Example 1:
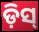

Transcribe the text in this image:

ଡ଼ିସ୍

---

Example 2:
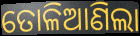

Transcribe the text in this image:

ତୋଳିଆଣିଲା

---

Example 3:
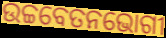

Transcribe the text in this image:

ଉଚ୍ଚବେତନଭୋଗୀ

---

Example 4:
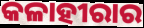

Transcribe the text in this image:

କଳାହୀରାର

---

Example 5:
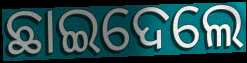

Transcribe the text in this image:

ଛାଇଦେଲେ